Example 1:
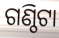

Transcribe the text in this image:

ଗଣ୍ଠିଟା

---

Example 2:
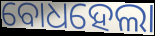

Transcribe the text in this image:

ବୋଧହେଲା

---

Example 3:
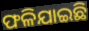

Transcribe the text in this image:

ଫଳିଯାଇଛି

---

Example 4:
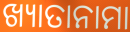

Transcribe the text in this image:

ଖ୍ୟାତାନାମା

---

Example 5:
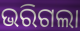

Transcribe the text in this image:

ଭରିଗଲା